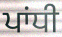
ਪਾਂਧੀ